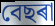
বেছৰা